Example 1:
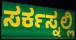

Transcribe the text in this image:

ಸರ್ಕಸ್ನಲ್ಲಿ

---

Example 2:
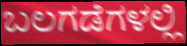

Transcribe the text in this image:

ಬಲಗಡೆಗಳಲ್ಲಿ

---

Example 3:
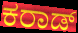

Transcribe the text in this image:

ಕರಾಡ್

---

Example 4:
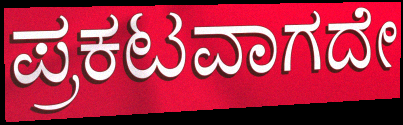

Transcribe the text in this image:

ಪ್ರಕಟವಾಗದೇ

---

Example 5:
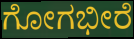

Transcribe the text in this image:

ಗೋಗಭೀರೆ